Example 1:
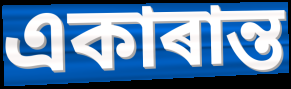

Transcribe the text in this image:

একাৰান্ত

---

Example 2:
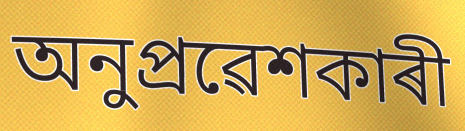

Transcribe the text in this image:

অনুপ্ৰৱেশকাৰী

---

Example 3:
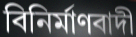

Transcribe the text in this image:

বিনিৰ্মাণবাদী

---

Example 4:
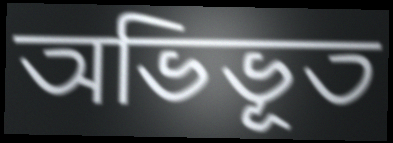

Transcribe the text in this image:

অভিভূত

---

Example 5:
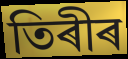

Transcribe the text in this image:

তিৰীৰ